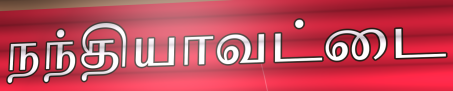
நந்தியாவட்டை